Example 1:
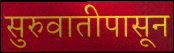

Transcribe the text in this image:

सुरुवातीपासून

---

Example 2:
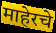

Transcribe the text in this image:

माहेरचे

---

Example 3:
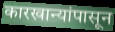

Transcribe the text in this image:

कारखान्यांपासून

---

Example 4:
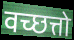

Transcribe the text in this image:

वच्छत्तो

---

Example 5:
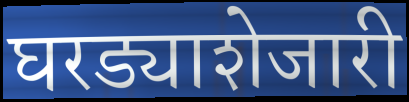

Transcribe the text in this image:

घरड्याशेजारी